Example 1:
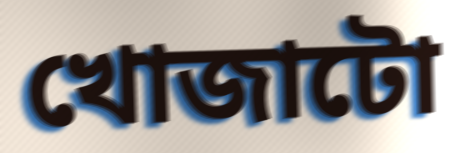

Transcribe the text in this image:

খোজাটো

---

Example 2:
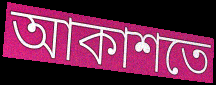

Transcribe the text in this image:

আকাশতে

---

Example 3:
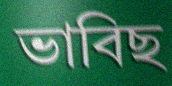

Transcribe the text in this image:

ভাবিছ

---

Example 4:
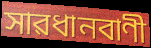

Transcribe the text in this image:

সাৱধানবাণী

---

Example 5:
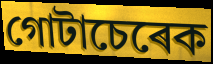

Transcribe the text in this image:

গোটাচেৰেক